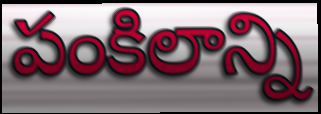
పంకిలాన్ని